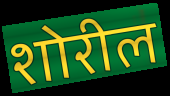
शोरील